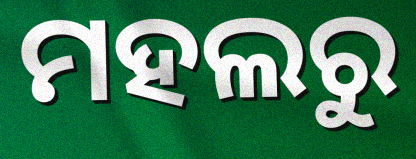
ମହଲରୁ